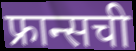
फ्रान्सची